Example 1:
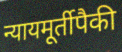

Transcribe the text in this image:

न्यायमूर्तीपैकी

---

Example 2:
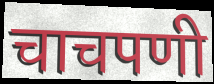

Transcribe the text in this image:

चाचपणी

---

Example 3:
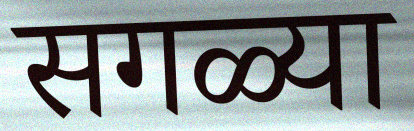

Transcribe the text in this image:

सगळ्या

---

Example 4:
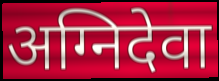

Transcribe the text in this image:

अग्निदेवा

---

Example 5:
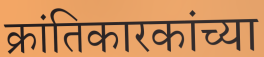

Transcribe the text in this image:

क्रांतिकारकांच्या